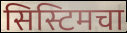
सिस्टिमचा